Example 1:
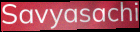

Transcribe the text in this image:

Savyasachi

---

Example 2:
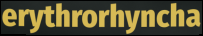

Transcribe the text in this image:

erythrorhyncha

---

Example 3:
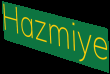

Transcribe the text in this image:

Hazmiye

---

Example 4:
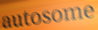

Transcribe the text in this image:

autosome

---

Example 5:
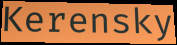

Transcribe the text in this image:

Kerensky